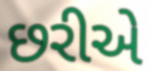
છરીએ